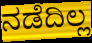
ನಡೆದಿಲ್ಲ